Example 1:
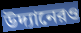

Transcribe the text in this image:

উদ্যানেরও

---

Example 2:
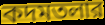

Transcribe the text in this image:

কদমতলার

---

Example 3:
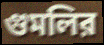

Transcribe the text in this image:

গুমলির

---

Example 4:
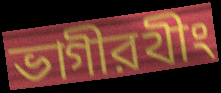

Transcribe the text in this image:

ভাগীরথীং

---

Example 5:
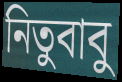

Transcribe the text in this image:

নিতুবাবু